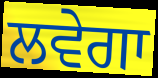
ਲਵੇਗਾ